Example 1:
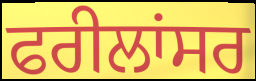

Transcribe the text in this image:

ਫਰੀਲਾਂਸਰ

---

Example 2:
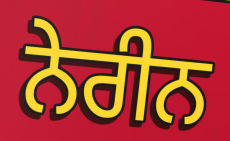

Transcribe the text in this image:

ਨੇਰੀਨ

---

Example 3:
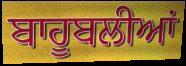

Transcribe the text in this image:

ਬਾਹੂਬਲੀਆਂ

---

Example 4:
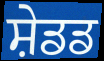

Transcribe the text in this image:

ਸ਼ੇਡਡ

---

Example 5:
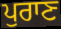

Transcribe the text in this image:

ਪੁਰਾਣ